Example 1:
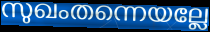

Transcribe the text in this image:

സുഖംതന്നെയല്ലേ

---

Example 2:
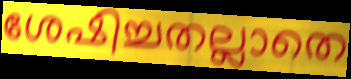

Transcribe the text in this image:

ശേഷിച്ചതല്ലാതെ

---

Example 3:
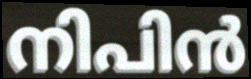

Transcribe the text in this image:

നിപിൻ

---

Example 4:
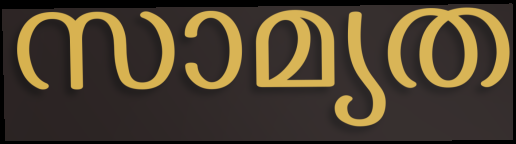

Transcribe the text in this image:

സാമ്യത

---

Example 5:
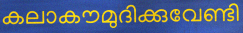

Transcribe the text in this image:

കലാകൗമുദിക്കുവേണ്ടി